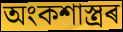
অংকশাস্ত্ৰৰ